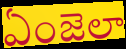
ఏంజెలా